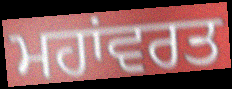
ਮਹਾਂਵਰਤ